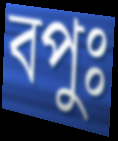
বপুঃ